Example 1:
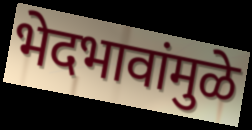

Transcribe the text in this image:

भेदभावांमुळे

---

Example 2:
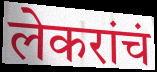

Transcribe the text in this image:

लेकरांचं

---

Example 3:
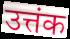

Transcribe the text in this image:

उत्तंक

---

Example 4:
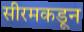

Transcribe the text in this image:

सीरमकडून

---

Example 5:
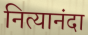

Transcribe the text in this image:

नित्यानंदा